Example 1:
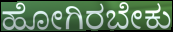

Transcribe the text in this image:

ಹೋಗಿರಬೇಕು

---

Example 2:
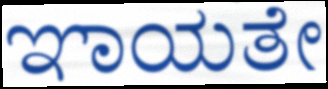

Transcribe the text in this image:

ಞಾಯತೇ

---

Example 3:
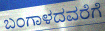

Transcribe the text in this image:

ಬಂಗಾಳದವರೆಗೆ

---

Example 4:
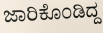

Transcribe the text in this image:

ಜಾರಿಕೊಂಡಿದ್ದ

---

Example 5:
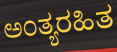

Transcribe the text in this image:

ಅಂತ್ಯರಹಿತ